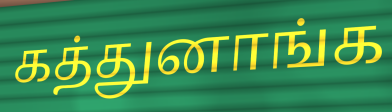
கத்துனாங்க